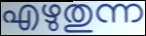
എഴുതുന്ന